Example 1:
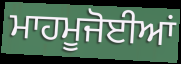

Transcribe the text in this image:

ਮਾਹਮੂਜੋਈਆਂ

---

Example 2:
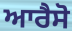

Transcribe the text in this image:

ਆਰੈਸੋ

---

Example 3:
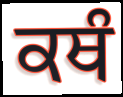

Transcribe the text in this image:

ਕਥੰ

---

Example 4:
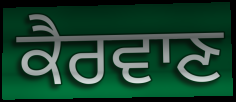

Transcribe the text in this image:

ਕੈਰਵਾਣ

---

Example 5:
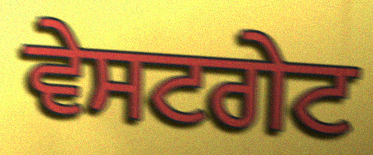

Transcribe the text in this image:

ਵੇਸਟਗੇਟ